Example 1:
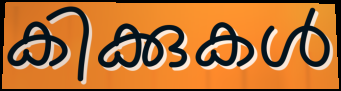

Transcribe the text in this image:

കിക്കുകൾ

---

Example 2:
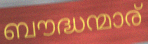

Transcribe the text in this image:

ബൗദ്ധന്മാര്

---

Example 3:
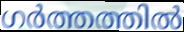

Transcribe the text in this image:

ഗർത്തത്തിൽ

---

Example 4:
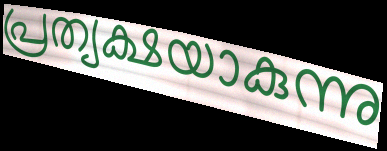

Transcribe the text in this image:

പ്രത്യക്ഷയാകുന്നു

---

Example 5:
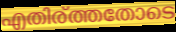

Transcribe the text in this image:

എതിര്ത്തതോടെ